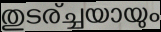
തുടര്ച്ചയായും